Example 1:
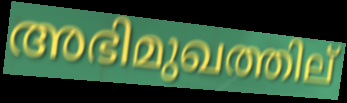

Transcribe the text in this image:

അഭിമുഖത്തില്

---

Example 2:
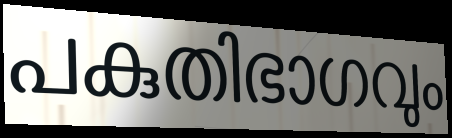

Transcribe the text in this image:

പകുതിഭാഗവും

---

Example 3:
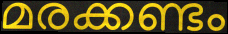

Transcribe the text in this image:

മരക്കണ്ടം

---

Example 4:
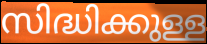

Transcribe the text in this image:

സിദ്ധിക്കുള്ള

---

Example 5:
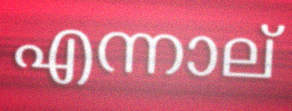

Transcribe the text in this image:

എന്നാല്